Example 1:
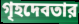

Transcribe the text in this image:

গৃহদেবতার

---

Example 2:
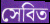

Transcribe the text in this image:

সেবিত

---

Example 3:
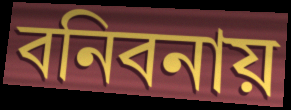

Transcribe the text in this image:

বনিবনায়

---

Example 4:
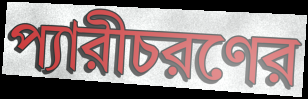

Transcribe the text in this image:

প্যারীচরণের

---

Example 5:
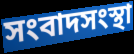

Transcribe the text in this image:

সংবাদসংস্থা